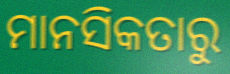
ମାନସିକତାରୁ